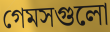
গেমসগুলো